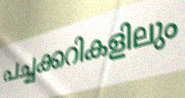
പച്ചക്കറികളിലും